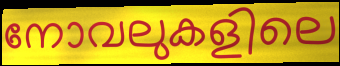
നോവലുകളിലെ